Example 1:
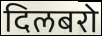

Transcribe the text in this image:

दिलबरो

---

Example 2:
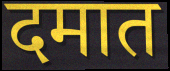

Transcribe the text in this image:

दमात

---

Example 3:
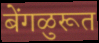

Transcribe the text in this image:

बेंगळुरूत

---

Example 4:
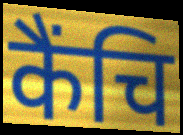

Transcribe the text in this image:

कैंचि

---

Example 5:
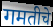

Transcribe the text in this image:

गमतीचे